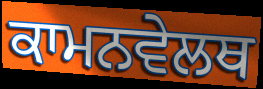
ਕਾਮਨਵੇਲਥ